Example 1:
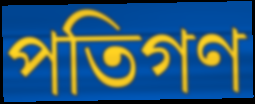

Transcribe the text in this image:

পতিগণ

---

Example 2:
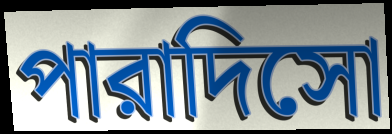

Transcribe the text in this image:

পারাদিসো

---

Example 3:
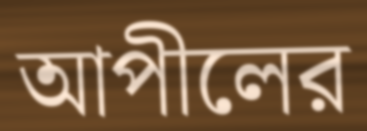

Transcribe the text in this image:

আপীলের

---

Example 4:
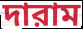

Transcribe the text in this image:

দারাম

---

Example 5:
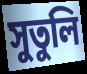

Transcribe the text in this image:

সুতুলি